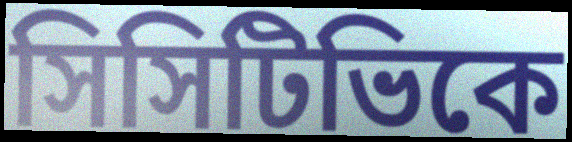
সিসিটিভিকে